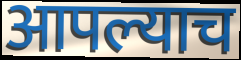
आपल्याच